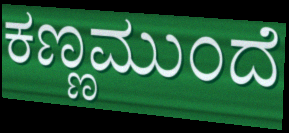
ಕಣ್ಣಮುಂದೆ